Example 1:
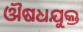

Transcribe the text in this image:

ଔଷଧଯୁକ୍ତ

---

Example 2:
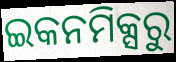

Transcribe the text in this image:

ଇକନମିକ୍ସରୁ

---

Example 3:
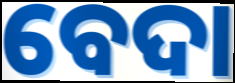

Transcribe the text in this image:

ବେଦା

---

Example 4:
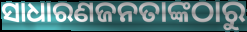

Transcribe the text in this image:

ସାଧାରଣଜନତାଙ୍କଠାରୁ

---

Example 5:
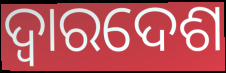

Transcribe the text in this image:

ଦ୍ଵାରଦେଶ